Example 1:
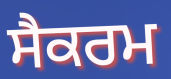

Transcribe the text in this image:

ਸੈਕਰਮ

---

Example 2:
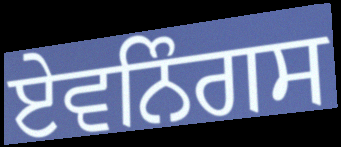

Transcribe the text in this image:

ਏਵਨਿੰਗਸ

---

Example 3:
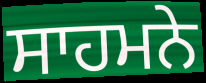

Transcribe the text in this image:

ਸਾਹਮਨੇ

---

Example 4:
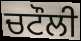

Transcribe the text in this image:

ਚਟੌਲੀ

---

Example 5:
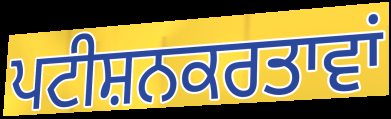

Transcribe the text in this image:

ਪਟੀਸ਼ਨਕਰਤਾਵਾਂ